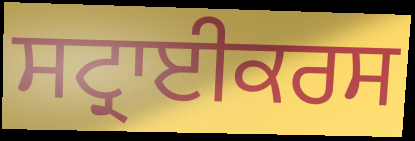
ਸਟ੍ਰਾਈਕਰਸ